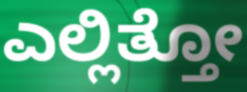
ಎಲ್ಲಿತ್ತೋ